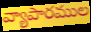
వ్యాపారముల